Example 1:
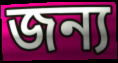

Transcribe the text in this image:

জন্য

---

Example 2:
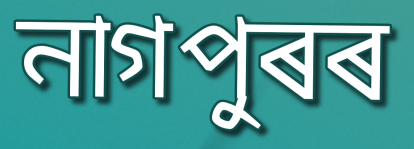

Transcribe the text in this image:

নাগপুৰৰ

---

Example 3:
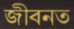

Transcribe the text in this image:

জীবনত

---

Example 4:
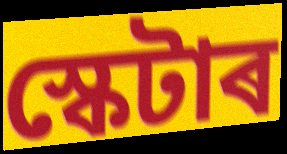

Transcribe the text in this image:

স্কেটাৰ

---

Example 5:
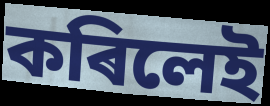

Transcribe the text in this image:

কৰিলেই